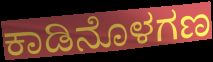
ಕಾಡಿನೊಳಗಣ